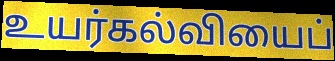
உயர்கல்வியைப்